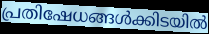
പ്രതിഷേധങ്ങൾക്കിടയിൽ